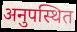
अनुपस्थित